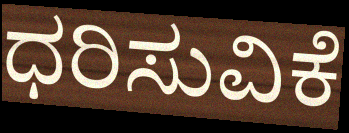
ಧರಿಸುವಿಕೆ